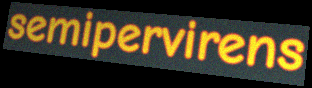
semipervirens